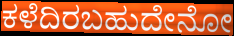
ಕಳೆದಿರಬಹುದೇನೋ